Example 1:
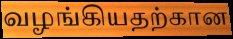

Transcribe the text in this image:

வழங்கியதற்கான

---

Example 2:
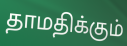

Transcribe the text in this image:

தாமதிக்கும்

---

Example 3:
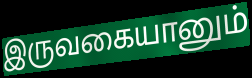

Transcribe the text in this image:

இருவகையானும்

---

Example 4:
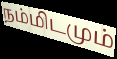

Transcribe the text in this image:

நம்மிடமும்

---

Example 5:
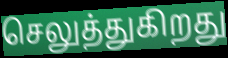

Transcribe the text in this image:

செலுத்துகிறது